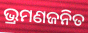
ଭ୍ରମଣଜନିତ